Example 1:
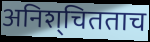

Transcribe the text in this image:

अनिश्चितताच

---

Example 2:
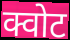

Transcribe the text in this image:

क्वोट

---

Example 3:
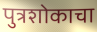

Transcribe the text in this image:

पुत्रशोकाचा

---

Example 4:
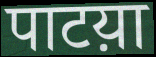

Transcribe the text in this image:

पाटय़ा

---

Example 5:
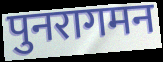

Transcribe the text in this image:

पुनरागमन